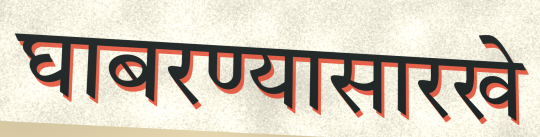
घाबरण्यासारखे